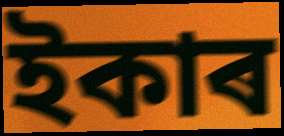
ইকাৰ